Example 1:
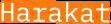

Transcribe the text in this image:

Harakat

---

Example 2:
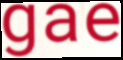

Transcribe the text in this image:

gae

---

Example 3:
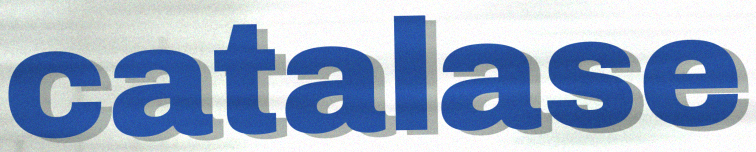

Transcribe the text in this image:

catalase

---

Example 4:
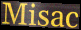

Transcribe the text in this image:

Misac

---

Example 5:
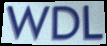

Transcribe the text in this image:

WDL